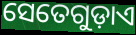
ସେତେଗୁଡ଼ାଏ